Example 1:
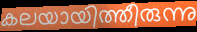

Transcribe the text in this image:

കലയായിത്തീരുന്നു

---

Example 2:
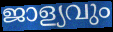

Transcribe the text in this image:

ജാള്യവും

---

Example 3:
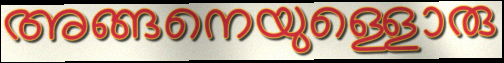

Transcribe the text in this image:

അങ്ങനെയുള്ളൊരു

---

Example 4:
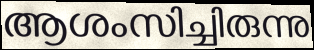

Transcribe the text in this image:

ആശംസിച്ചിരുന്നു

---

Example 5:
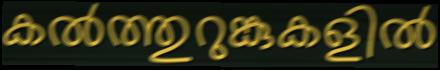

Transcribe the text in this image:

കൽത്തുറുങ്കുകളിൽ